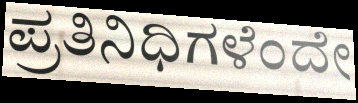
ಪ್ರತಿನಿಧಿಗಳೆಂದೇ